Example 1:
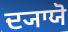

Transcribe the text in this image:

ਦ੍ਯਾਯੋ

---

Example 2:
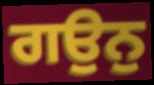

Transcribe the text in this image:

ਗਉਨੁ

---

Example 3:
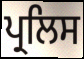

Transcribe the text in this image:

ਪ੍ਰਲਿਸ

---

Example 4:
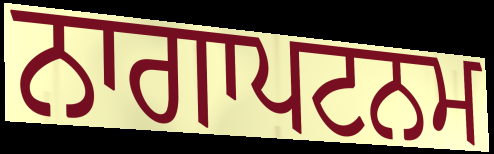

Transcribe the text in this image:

ਨਾਗਾਪਟਨਮ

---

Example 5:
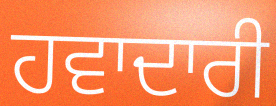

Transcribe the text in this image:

ਹਵਾਦਾਰੀ